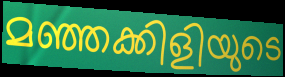
മഞ്ഞക്കിളിയുടെ